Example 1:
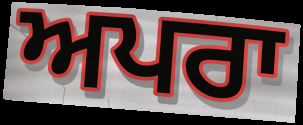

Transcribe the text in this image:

ਅਪਰਾ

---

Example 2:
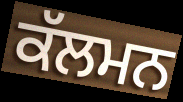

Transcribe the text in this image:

ਕੱਲਮਨ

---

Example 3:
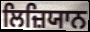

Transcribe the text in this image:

ਲਿਜ਼ਿਯਾਨ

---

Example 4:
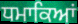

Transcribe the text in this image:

ਧਮਾਕਿਆਂ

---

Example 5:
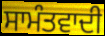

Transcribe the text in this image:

ਸਾਮੰਤਵਾਦੀ